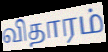
விதாரம்